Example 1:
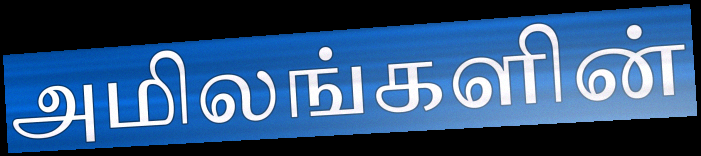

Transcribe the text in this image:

அமிலங்களின்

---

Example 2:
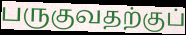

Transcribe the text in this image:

பருகுவதற்குப்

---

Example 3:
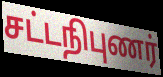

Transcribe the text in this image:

சட்டநிபுணர்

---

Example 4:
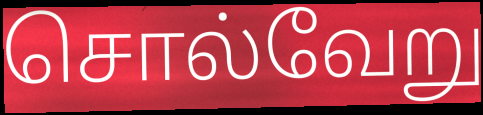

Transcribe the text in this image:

சொல்வேறு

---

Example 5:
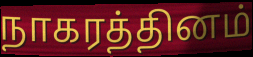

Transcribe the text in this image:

நாகரத்தினம்